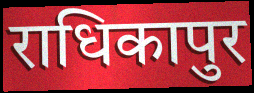
राधिकापुर